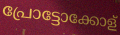
പ്രോട്ടോക്കോള്